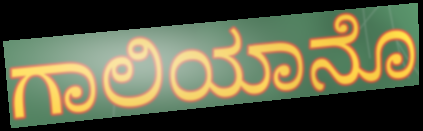
ಗಾಲಿಯಾನೊ